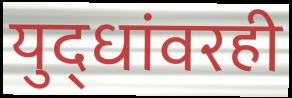
युद्धांवरही